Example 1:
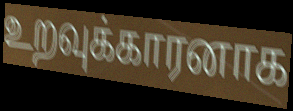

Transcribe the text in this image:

உறவுக்காரனாக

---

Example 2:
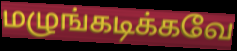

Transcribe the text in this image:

மழுங்கடிக்கவே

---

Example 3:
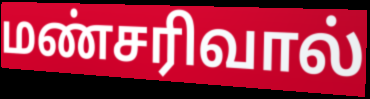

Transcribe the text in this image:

மண்சரிவால்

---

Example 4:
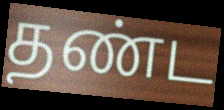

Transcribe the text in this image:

தண்ட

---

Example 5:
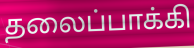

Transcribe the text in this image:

தலைப்பாக்கி